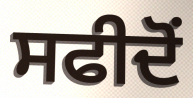
ਸਫੀਦੋਂ